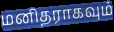
மனிதராகவும்